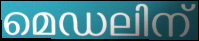
മെഡലിന്